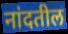
नांदतील